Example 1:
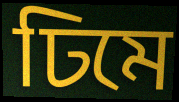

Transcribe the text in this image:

ঢিমে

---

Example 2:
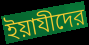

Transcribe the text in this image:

ইয়াযীদের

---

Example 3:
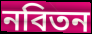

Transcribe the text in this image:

নবিতন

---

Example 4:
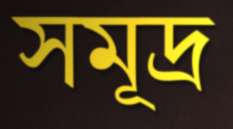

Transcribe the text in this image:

সমূদ্র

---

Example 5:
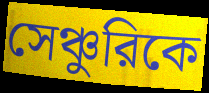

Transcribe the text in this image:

সেঞ্চুরিকে